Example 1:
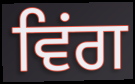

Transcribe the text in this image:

ਵਿਂਗ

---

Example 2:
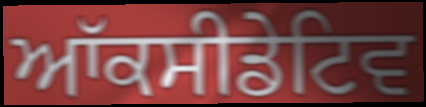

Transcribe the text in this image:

ਆੱਕਸੀਡੇਟਿਵ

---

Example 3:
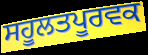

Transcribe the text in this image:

ਸਹੂਲਤਪੂਰਵਕ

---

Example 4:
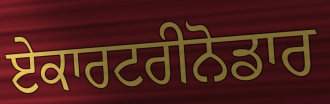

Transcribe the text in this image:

ਏਕਾਰਟਰੀਨੋਡਾਰ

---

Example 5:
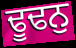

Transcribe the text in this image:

ਢੂਢਨੁ